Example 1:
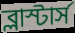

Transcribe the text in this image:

ব্লাস্টার্স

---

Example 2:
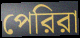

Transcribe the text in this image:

পেরিরা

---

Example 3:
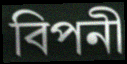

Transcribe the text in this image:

বিপনী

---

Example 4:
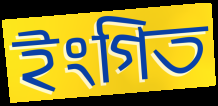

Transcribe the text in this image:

ইংগিত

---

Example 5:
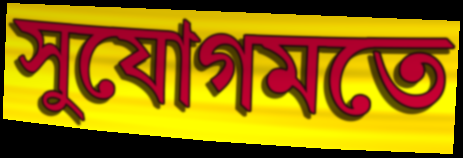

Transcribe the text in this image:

সুযোগমতে